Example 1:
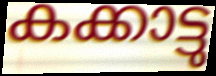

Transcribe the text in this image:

കക്കാട്ടു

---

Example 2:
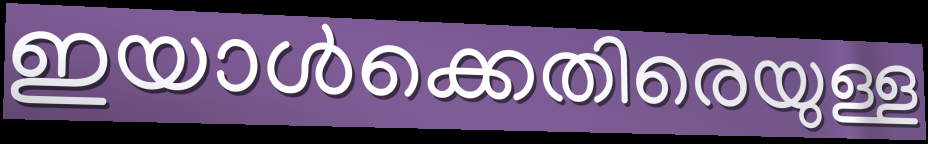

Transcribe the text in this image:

ഇയാൾക്കെതിരെയുള്ള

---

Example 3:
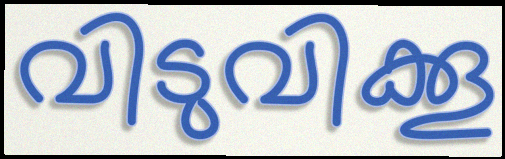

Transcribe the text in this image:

വിടുവിക്കൂ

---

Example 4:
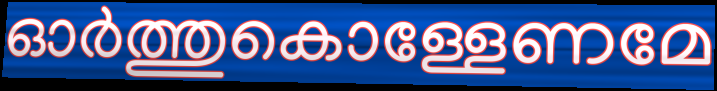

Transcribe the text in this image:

ഓർത്തുകൊള്ളേണമേ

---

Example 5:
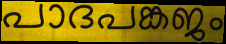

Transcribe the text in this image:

പാദപങ്കജം